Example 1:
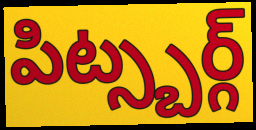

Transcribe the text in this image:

పిట్స్బర్గ్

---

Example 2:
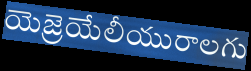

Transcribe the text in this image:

యెజ్రెయేలీయురాలగు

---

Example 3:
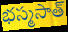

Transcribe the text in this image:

భస్మసాత్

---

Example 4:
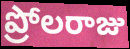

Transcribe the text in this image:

ప్రోలరాజు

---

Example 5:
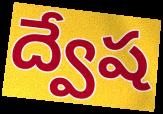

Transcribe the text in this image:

ద్వేష